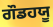
ਗੌਡਹਯੂ